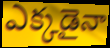
ఎక్కడైనా